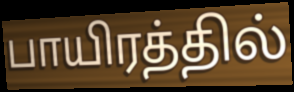
பாயிரத்தில்